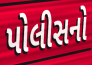
પોલીસનો